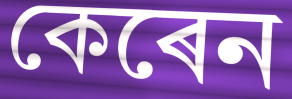
কেৰেন